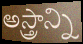
అస్త్రాన్ని